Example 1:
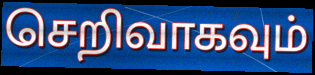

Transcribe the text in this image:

செறிவாகவும்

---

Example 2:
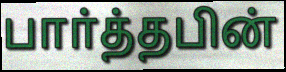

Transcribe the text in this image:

பார்த்தபின்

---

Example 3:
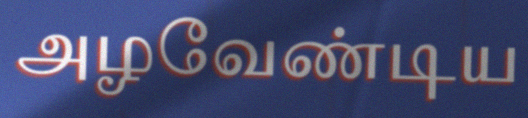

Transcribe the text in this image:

அழவேண்டிய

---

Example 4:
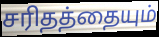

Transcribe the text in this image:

சரிதத்தையும்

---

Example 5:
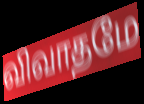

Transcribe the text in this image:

விவாதமே